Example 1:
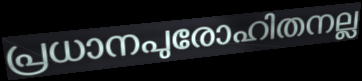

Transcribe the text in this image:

പ്രധാനപുരോഹിതനല്ല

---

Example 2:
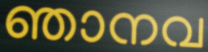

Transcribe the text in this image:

ഞാനവ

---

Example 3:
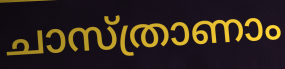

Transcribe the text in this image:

ചാസ്ത്രാണാം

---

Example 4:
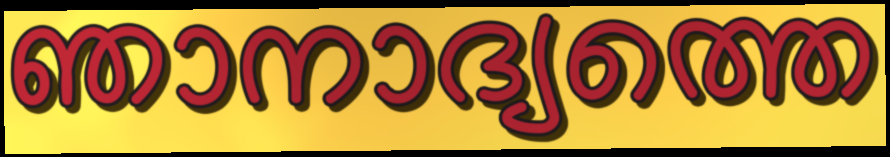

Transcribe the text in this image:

ഞാനാദ്യത്തെ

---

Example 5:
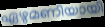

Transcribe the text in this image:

ഏഴുമണിയായി